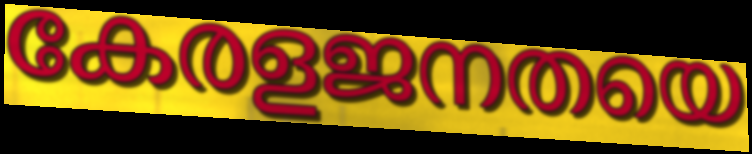
കേരളജനതയെ